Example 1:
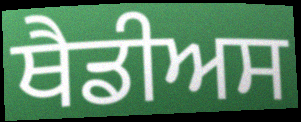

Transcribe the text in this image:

ਥੈਡੀਅਸ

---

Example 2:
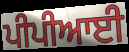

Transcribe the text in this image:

ਪੀਪੀਆਈ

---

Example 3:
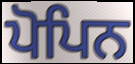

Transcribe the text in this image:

ਪੋਪਿਨ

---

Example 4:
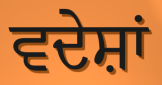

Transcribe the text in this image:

ਵਦੇਸ਼ਾਂ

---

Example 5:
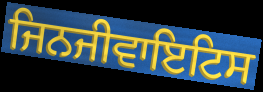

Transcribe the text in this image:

ਜਿਨਜੀਵਾਇਟਿਸ